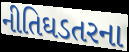
નીતિઘડતરના